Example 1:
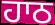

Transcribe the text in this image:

ਹਾਠ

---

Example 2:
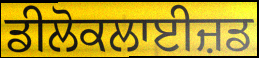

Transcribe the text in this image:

ਡੀਲੋਕਲਾਈਜ਼ਡ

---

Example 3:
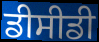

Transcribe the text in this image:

ਡੀਸੀਡੀ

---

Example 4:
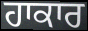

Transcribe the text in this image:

ਹਾਕਾਰ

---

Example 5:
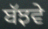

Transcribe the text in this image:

ਬੱਝਵੇ